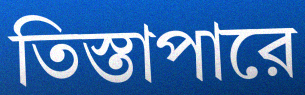
তিস্তাপারে